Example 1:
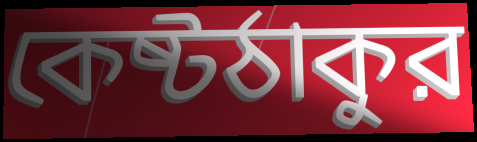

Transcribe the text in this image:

কেষ্টঠাকুর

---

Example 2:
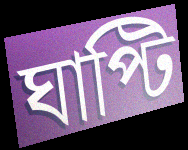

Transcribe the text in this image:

ঘাপ্টি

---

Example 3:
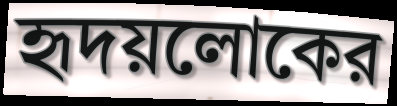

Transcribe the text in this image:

হৃদয়লোকের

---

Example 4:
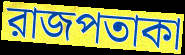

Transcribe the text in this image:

রাজপতাকা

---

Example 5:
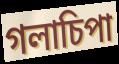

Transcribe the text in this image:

গলাচিপা